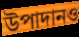
উপাদানও